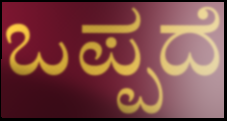
ಒಪ್ಪದೆ